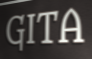
GITA